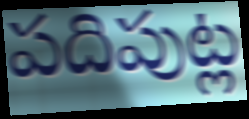
పదిపుట్ల